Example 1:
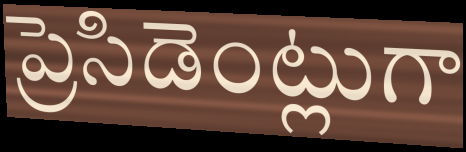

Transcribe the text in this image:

ప్రెసిడెంట్లుగా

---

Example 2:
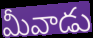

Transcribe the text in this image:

మీవాడు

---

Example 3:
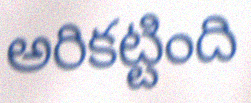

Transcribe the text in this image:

అరికట్టింది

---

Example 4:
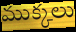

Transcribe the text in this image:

ముక్కలు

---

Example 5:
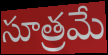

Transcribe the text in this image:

సూత్రమే